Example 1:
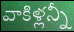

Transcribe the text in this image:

వాకిళ్లన్నీ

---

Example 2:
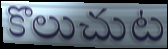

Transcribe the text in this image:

కొలుచుట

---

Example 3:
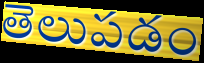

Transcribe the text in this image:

తెలుపడం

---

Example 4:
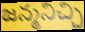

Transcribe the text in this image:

జన్మనిచ్చి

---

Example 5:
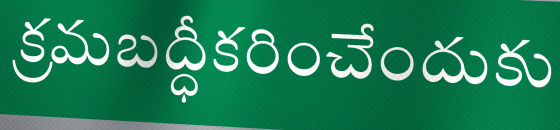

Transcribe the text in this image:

క్రమబద్ధీకరించేందుకు